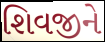
શિવજીને